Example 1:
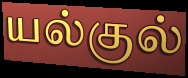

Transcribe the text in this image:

யல்குல்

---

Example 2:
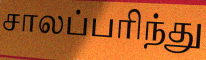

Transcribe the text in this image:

சாலப்பரிந்து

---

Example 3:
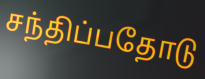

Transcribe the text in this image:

சந்திப்பதோடு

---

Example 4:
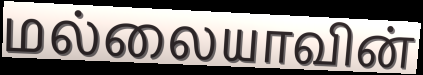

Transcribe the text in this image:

மல்லையாவின்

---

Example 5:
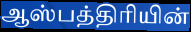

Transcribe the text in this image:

ஆஸ்பத்திரியின்